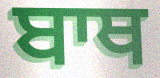
ਬਾਥ